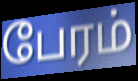
பேரம்